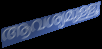
ആവശ്യമുള്ളൂ